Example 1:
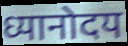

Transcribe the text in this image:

ध्यानोदय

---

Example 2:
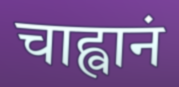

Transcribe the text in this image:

चाह्वानं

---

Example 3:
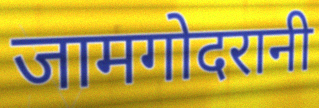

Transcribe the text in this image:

जामगोदरानी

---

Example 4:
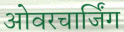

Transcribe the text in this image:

ओवरचार्जिंग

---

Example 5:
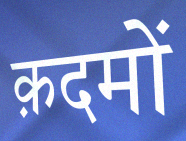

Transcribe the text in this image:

क़दमों